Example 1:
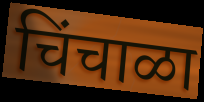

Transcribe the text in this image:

चिंचाळा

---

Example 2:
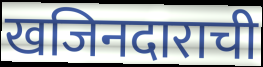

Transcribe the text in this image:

खजिनदाराची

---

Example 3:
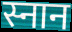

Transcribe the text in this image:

स्नान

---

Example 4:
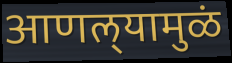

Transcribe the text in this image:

आणल्यामुळं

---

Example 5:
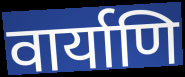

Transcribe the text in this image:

वार्याणि